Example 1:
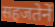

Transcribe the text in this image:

सहजतेनें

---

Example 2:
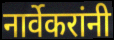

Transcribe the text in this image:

नार्वेकरांनी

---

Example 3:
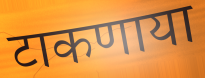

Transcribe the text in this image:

टाकणाया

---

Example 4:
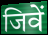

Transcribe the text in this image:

जिवें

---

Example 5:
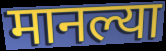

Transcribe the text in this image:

मानल्या